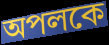
অপলকে